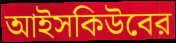
আইসকিউবের